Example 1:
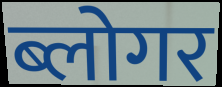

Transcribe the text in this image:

ब्लोगर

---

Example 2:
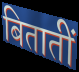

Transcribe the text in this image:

बितातीं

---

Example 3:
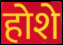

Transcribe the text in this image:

होशे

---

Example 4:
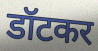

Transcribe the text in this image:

डॉटकर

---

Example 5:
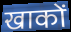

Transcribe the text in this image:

खाकों